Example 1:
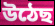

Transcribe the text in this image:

উঠেছ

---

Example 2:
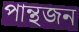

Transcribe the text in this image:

পান্থজন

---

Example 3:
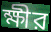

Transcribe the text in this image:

ক্ষীর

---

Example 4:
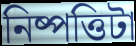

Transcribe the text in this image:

নিষ্পত্তিটা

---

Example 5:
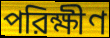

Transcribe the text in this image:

পরিক্ষীণ